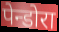
पेन्डोरा